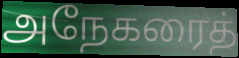
அநேகரைத்